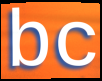
bc